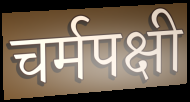
चर्मपक्षी